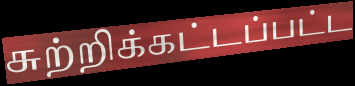
சுற்றிக்கட்டப்பட்ட